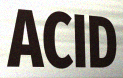
ACID